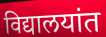
विद्यालयांत